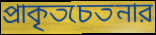
প্রাকৃতচেতনার